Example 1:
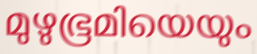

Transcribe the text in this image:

മുഴുഭൂമിയെയും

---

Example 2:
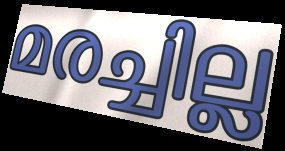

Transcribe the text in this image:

മരച്ചില്ല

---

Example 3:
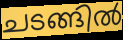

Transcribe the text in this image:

ചടങ്ങിൽ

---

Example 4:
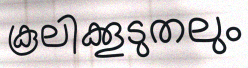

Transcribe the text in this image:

കൂലിക്കൂടുതലും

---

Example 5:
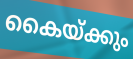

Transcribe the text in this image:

കൈയ്ക്കും